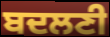
ਬਦਲਣੀ